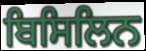
ਬਿਸਿਲਿਨ